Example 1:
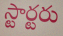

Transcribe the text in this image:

స్టార్టరు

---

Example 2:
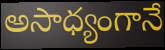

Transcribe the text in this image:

అసాధ్యంగానే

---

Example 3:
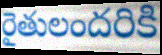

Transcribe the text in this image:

రైతులందరికి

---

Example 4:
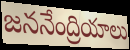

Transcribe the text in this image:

జననేంద్రియాలు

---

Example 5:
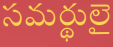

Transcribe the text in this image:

సమర్థులై